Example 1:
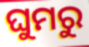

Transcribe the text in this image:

ଘୁମରୁ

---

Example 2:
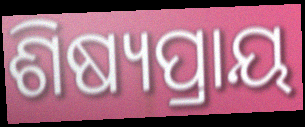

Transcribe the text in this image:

ଶିଷ୍ୟପ୍ରାୟ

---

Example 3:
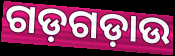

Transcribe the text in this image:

ଗଡ଼ଗଡ଼ାଉ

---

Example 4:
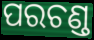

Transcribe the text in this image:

ପରଚଣ୍ଡ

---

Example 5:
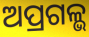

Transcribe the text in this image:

ଅପ୍ରଗଳ୍ଭ